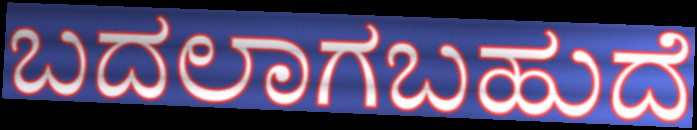
ಬದಲಾಗಬಹುದೆ